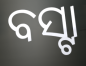
ବସ୍ଟା